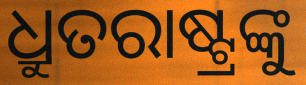
ଧ୍ରୁତରାଷ୍ଟ୍ରଙ୍କୁ